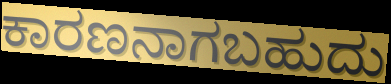
ಕಾರಣನಾಗಬಹುದು